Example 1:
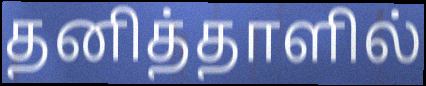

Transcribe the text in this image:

தனித்தாளில்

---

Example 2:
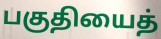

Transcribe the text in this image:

பகுதியைத்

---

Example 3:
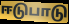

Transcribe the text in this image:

ஈடுபாடு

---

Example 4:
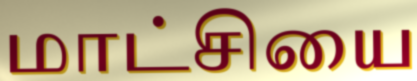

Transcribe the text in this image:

மாட்சியை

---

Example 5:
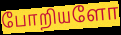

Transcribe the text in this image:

போறியளோ